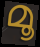
മൂ